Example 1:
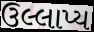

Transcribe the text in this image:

ઉલ્લાપ્ય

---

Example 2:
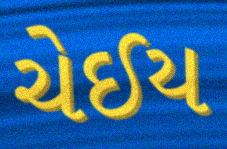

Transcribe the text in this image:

ચેઈય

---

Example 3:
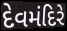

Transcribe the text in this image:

દેવમંદિરે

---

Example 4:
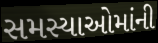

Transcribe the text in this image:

સમસ્યાઓમાંની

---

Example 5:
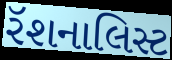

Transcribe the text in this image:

રૅશનાલિસ્ટ